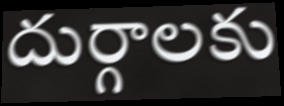
దుర్గాలకు